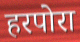
हरपोरा